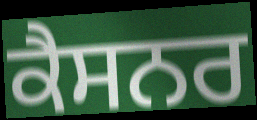
ਕੈਸਨਰ